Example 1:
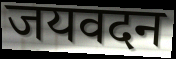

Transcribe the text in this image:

जयवदन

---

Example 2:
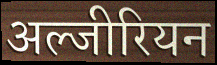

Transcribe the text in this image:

अल्जीरियन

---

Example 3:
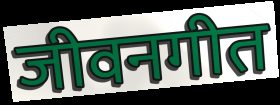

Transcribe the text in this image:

जीवनगीत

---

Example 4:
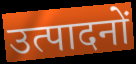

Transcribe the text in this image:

उत्पादनों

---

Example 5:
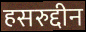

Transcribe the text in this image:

हसरुद्दीन